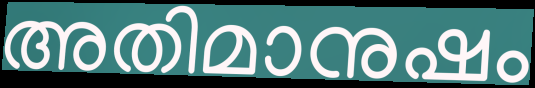
അതിമാനുഷം